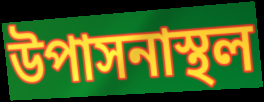
উপাসনাস্থল